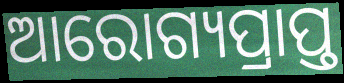
ଆରୋଗ୍ୟପ୍ରାପ୍ତ